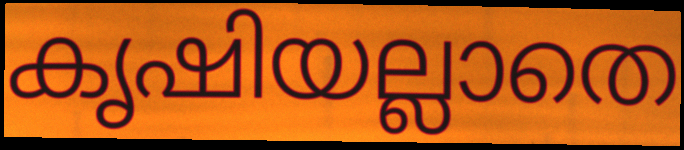
കൃഷിയല്ലാതെ